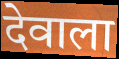
देवाला